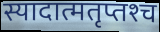
स्यादात्मतृप्तश्च